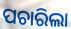
ପଚାରିଲା